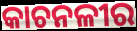
କାଚନଳୀର